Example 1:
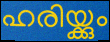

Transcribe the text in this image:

ഹരിയ്ക്കും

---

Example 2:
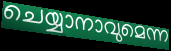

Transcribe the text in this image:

ചെയ്യാനാവുമെന്ന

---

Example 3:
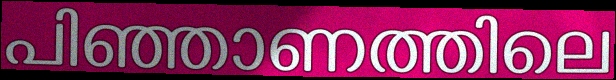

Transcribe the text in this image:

പിഞ്ഞാണത്തിലെ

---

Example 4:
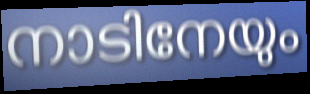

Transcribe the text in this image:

നാടിനേയും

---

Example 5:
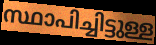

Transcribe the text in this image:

സ്ഥാപിച്ചിട്ടുള്ള